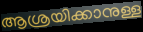
ആശ്രയിക്കാനുള്ള